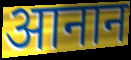
आनान